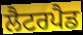
ਲੈਟਰਪੈਡ